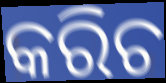
କରିଚ